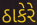
ઠાકેરે